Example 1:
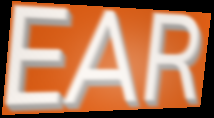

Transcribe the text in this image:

EAR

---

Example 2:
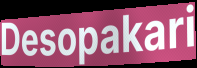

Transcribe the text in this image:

Desopakari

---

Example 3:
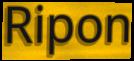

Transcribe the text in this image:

Ripon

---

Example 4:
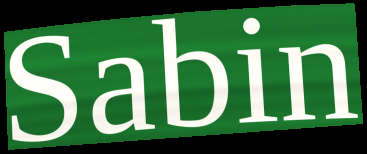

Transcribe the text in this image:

Sabin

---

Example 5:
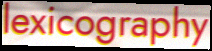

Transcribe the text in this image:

lexicography